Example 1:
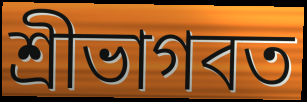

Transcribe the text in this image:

শ্রীভাগবত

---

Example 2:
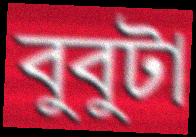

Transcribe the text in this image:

বুবুটা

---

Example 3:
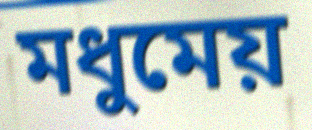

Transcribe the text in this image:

মধুমেয়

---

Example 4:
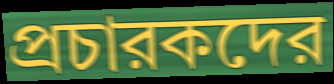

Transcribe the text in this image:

প্রচারকদের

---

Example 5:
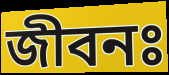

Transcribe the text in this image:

জীবনঃ